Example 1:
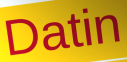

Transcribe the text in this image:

Datin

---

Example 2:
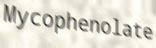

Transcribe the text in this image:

Mycophenolate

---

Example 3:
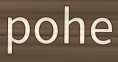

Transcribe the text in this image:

pohe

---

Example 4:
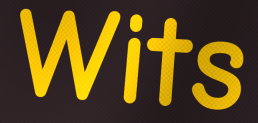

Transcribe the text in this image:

Wits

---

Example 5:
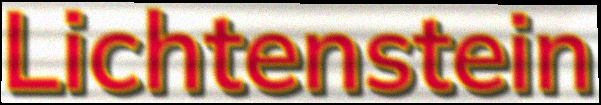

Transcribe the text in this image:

Lichtenstein